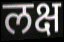
लक्ष